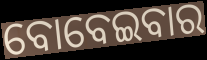
ବୋବେଇବାର